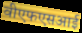
वीएफएसआई